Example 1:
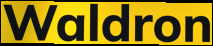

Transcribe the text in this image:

Waldron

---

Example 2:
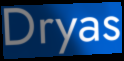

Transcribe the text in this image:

Dryas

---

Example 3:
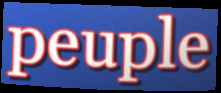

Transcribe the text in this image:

peuple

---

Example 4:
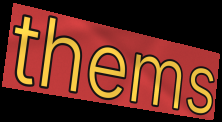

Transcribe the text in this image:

thems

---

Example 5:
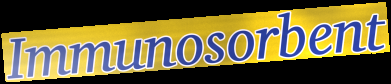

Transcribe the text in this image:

Immunosorbent